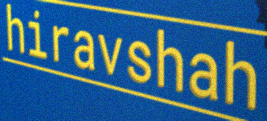
hiravshah